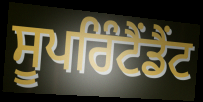
ਸੂਪਰਿੰਟੈਂਡੈਂਟ